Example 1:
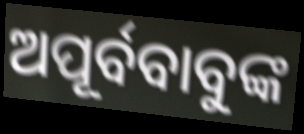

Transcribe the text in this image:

ଅପୂର୍ବବାବୁଙ୍କ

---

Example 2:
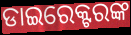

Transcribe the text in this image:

ଡାଇରେକ୍ଟରଙ୍କ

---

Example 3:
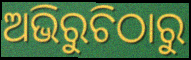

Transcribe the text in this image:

ଅଭିରୁଚିଠାରୁ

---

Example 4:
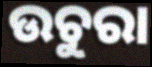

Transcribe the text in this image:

ଉଚୁରା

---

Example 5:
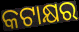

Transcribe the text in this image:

କଟାକ୍ଷର